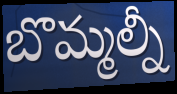
బొమ్మల్నీ